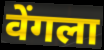
वेंगला